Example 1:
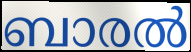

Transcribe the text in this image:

ബാരൽ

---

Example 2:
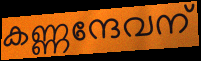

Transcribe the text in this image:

കണ്ണന്ദേവന്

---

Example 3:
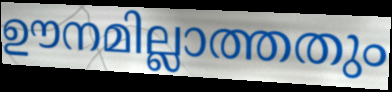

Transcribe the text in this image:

ഊനമില്ലാത്തതും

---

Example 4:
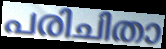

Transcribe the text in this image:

പരിചിതാ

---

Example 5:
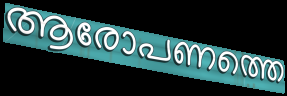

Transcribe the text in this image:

ആരോപണത്തെ